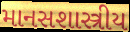
માનસશાસ્ત્રીય